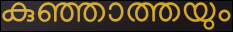
കുഞ്ഞാത്തയും